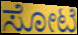
ಸೋಟೆ